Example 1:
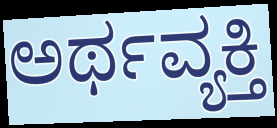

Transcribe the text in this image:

ಅರ್ಥವ್ಯಕ್ತಿ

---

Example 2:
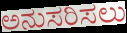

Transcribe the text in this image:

ಅನುಸರಿಸಲು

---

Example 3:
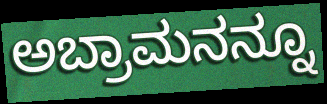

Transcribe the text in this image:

ಅಬ್ರಾಮನನ್ನೂ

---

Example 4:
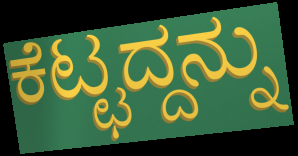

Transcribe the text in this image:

ಕೆಟ್ಟದ್ದನ್ನು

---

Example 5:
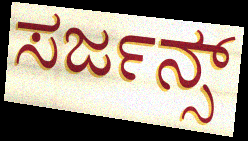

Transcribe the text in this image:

ಸರ್ಜನ್ಸ್